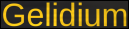
Gelidium